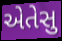
એતેસુ